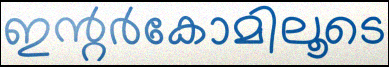
ഇന്റർകോമിലൂടെ